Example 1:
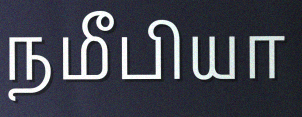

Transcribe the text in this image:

நமீபியா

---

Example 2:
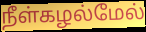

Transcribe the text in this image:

நீள்கழல்மேல்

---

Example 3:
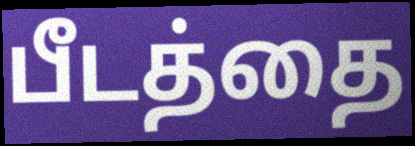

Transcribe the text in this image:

பீடத்தை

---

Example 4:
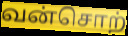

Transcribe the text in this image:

வன்சொற்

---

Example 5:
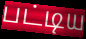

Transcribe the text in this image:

பட்டிய